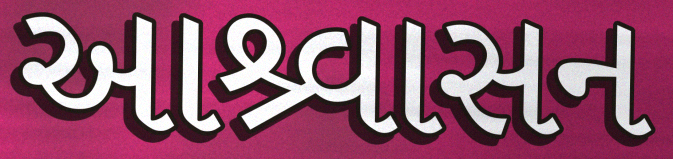
આશ્ર્વાસન